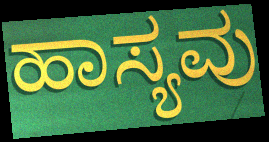
ಹಾಸ್ಯವು